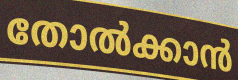
തോൽക്കാൻ